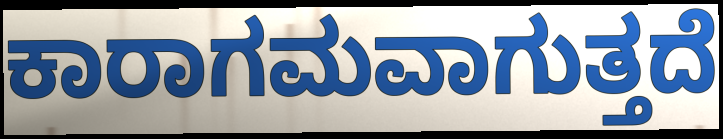
ಕಾರಾಗಮವಾಗುತ್ತದೆ